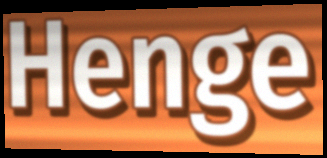
Henge